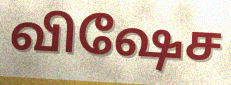
விஷேச